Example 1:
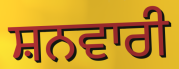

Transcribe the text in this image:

ਸ਼ਨਵਾਰੀ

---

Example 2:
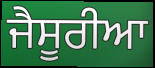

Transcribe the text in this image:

ਜੈਸੂਰੀਆ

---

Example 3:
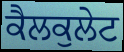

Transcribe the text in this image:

ਕੈਲਕੁਲੇਟ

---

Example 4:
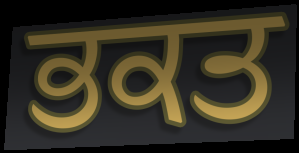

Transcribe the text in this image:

ਭਕਤ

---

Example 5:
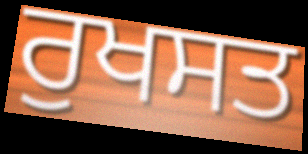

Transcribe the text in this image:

ਰੁਖਸਤ